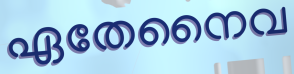
ഏതേനൈവ